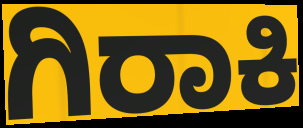
ಗಿರಾಕಿ